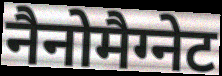
नैनोमैग्नेट